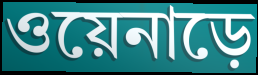
ওয়েনাড়ে